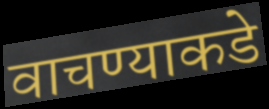
वाचण्याकडे